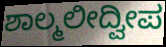
ಶಾಲ್ಮಲೀದ್ವೀಪ